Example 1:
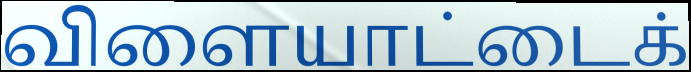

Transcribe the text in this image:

விளையாட்டைக்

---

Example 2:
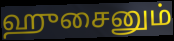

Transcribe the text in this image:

ஹுசைனும்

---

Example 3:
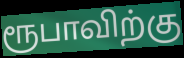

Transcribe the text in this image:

ரூபாவிற்கு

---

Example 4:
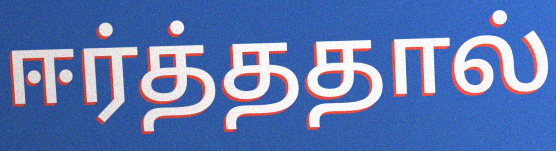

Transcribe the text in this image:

ஈர்த்ததால்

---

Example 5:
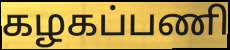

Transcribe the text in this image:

கழகப்பணி